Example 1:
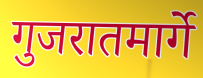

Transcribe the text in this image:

गुजरातमार्गे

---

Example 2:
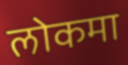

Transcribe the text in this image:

लोकमा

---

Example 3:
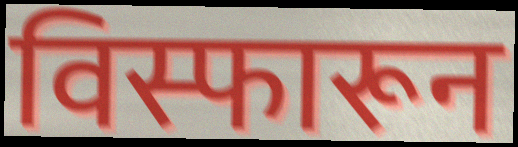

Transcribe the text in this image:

विस्फारून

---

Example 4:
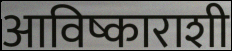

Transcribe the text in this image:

आविष्काराशी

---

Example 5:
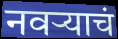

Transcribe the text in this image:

नवर्‍याचं